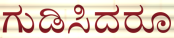
ಗುಡಿಸಿದರೂ